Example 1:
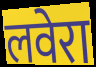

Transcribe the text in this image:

लवेरा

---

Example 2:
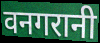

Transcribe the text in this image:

वनगरानी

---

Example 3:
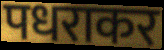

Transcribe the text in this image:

पधराकर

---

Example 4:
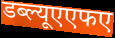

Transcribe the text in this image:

डब्ल्यूएएफए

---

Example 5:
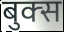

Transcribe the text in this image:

बुक्‍स